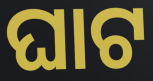
ଘାଟ